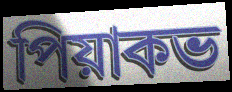
পিয়াকভ